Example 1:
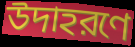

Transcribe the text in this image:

উদাহরণে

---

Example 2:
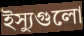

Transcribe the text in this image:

ইস্যুগুলো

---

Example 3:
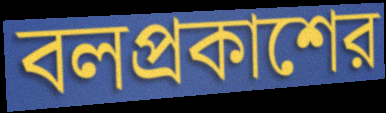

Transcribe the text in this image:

বলপ্রকাশের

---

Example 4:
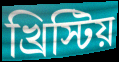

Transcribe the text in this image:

খ্রিস্টিয়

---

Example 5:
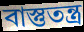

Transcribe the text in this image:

বাস্তুতন্ত্র